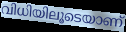
വിധിയിലൂടെയാണ്